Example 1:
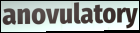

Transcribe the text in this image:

anovulatory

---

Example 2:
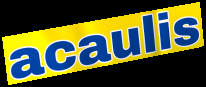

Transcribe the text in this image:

acaulis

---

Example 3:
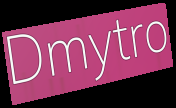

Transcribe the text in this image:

Dmytro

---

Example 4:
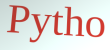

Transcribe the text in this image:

Pytho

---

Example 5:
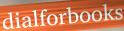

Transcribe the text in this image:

dialforbooks